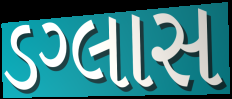
ડગ્લાસ